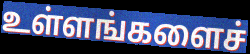
உள்ளங்களைச்